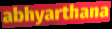
abhyarthana